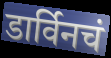
डार्विनचं